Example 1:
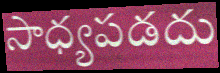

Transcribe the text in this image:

సాధ్యపడదు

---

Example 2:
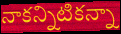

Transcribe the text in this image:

నాకన్నిటికన్నా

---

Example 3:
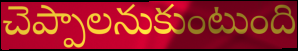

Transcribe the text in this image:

చెప్పాలనుకుంటుంది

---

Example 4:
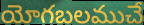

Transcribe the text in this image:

యోగబలముచే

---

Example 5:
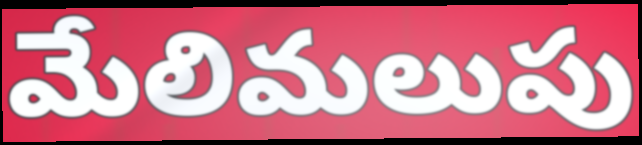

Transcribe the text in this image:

మేలిమలుపు